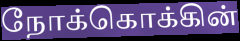
நோக்கொக்கின்